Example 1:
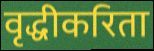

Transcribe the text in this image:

वृद्धीकरिता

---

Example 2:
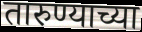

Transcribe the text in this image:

तारुण्याच्या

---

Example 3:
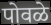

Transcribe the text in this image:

पोवळे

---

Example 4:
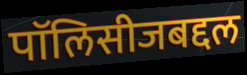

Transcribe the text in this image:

पॉलिसीजबद्दल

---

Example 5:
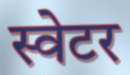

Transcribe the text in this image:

स्वेटर